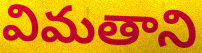
విమతాని